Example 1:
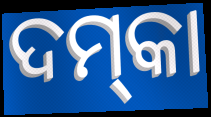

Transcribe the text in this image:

ଦମ୍‌କା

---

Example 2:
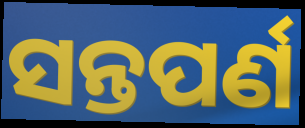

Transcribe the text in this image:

ସନ୍ତପର୍ଣ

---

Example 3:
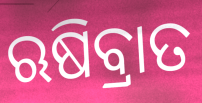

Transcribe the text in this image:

ଋଷିବ୍ରାତ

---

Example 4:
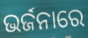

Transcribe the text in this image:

ଭର୍ଜନାରେ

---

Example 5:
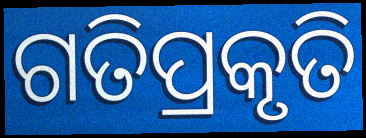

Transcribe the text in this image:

ଗତିପ୍ରକୃତି